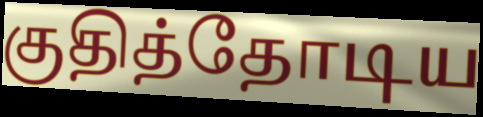
குதித்தோடிய